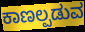
ಕಾಣಲ್ಪಡುವ